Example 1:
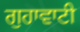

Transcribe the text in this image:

ਗੁਹਾਵਾਟੀ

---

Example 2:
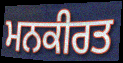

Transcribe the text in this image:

ਮਨਕੀਰਤ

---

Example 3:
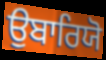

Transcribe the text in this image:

ਉਬਾਰਿਯੋ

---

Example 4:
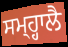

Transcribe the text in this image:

ਸਮ੍ਹ੍ਹਾਲੈ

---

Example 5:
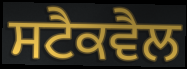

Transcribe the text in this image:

ਸਟੈਕਵੈਲ